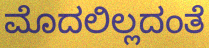
ಮೊದಲಿಲ್ಲದಂತೆ